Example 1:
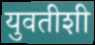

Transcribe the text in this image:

युवतीशी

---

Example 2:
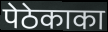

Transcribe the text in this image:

पेठेकाका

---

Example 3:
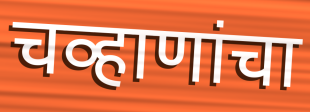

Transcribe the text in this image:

चव्हाणांचा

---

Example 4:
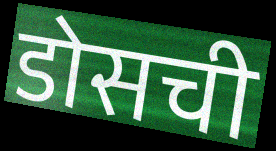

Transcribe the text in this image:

डोसची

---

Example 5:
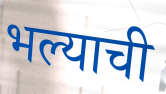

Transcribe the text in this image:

भल्याची